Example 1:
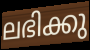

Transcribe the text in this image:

ലഭിക്കു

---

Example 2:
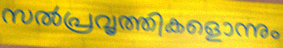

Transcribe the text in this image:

സൽപ്രവൃത്തികളൊന്നും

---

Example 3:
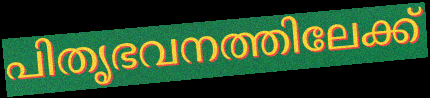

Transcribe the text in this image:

പിതൃഭവനത്തിലേക്ക്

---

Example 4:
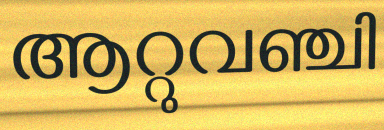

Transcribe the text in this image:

ആറ്റുവഞ്ചി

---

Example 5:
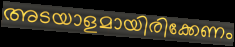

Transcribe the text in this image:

അടയാളമായിരിക്കേണം